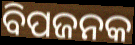
ବିପଜନକ